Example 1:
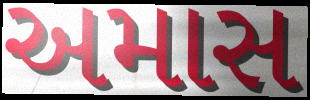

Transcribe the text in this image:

અમાસ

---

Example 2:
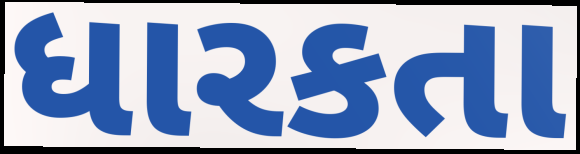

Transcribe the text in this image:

ધારકતા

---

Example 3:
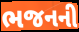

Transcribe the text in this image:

ભજનની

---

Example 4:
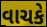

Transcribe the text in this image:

વાચકે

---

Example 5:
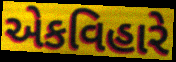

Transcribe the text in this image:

એકવિહારે